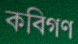
কবিগণ